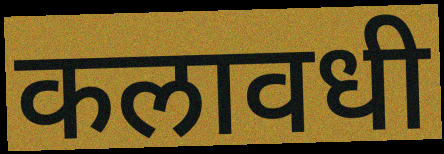
कलावधी